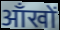
आँखों